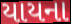
યાયના